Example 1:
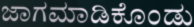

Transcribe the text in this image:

ಜಾಗಮಾಡಿಕೊಂಡು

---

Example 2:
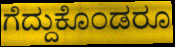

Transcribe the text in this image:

ಗೆದ್ದುಕೊಂಡರೂ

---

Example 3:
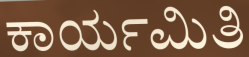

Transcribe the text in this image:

ಕಾರ್ಯಮಿತಿ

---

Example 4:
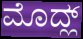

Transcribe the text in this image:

ಮೊದ್ಲ್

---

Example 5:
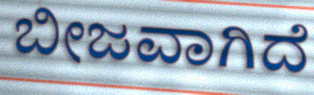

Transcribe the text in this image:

ಬೀಜವಾಗಿದೆ